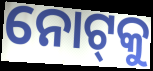
ନୋଟ୍‌କୁ